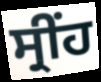
ਸ੍ਰੀਂਹ